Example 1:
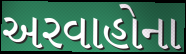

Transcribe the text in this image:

અરવાહોના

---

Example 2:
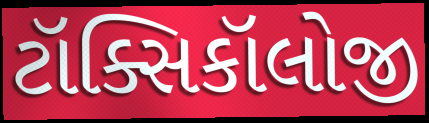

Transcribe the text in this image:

ટૉક્સિકૉલોજી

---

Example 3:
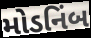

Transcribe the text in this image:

મોડનિંબ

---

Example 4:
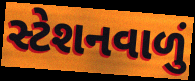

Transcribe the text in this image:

સ્ટેશનવાળું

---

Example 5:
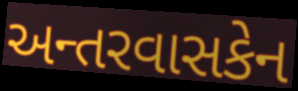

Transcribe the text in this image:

અન્તરવાસકેન